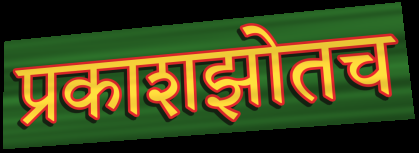
प्रकाशझोतच